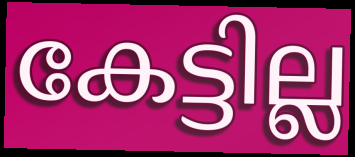
കേട്ടില്ല